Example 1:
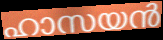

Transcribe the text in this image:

ഹാസയൻ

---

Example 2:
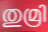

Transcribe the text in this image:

തുമ്രി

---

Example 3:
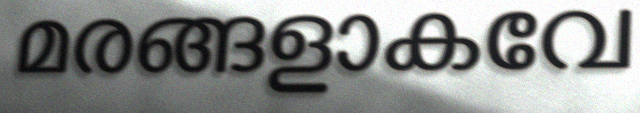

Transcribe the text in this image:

മരങ്ങളാകവേ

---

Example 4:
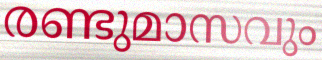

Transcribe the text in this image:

രണ്ടുമാസവും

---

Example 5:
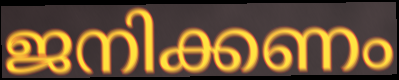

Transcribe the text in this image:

ജനിക്കണം